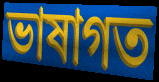
ভাষাগত